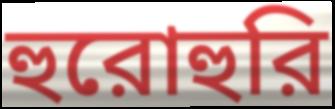
হুরোহুরি